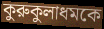
কুরুকুলাধমকে